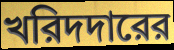
খরিদদারের